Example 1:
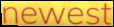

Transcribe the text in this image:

newest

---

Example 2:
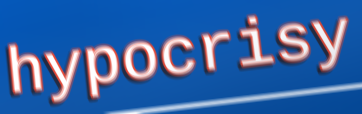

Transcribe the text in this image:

hypocrisy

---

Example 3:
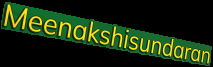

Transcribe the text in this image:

Meenakshisundaran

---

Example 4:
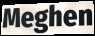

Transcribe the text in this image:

Meghen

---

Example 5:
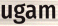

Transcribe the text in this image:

ugam